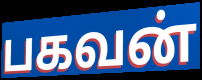
பகவன்